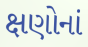
ક્ષણોનાં